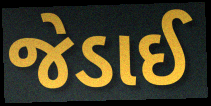
જેડાઈ